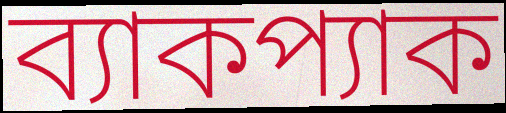
ব্যাকপ্যাক